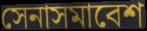
সেনাসমাবেশ